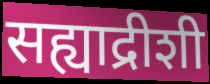
सह्याद्रीशी